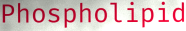
Phospholipid